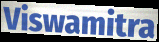
Viswamitra